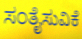
ಸಂತೈಸುವಿಕೆ